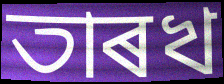
তাৰখ